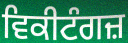
ਵਿਕੀਟੰਗਜ਼